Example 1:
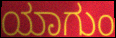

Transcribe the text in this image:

ಯಾಗುಂ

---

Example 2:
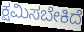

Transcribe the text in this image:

ಕ್ಷಮಿಸಬೇಕಿದೆ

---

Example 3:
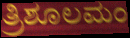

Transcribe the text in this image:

ತ್ರಿಶೂಲಮಂ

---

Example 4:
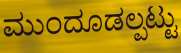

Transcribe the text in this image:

ಮುಂದೂಡಲ್ಪಟ್ಟು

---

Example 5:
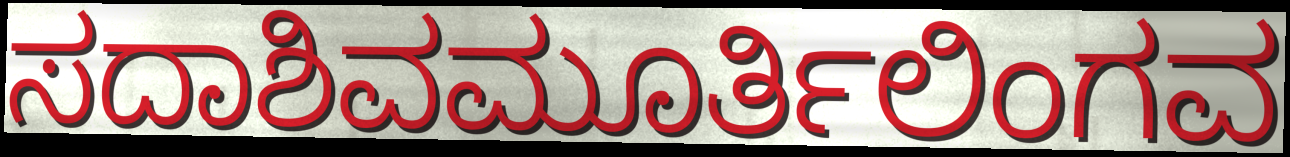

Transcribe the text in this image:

ಸದಾಶಿವಮೂರ್ತಿಲಿಂಗವ